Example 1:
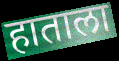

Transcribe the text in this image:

हाताला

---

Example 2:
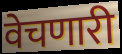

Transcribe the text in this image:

वेचणारी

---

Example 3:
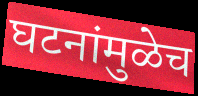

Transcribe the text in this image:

घटनांमुळेच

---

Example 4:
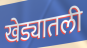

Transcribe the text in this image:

खेड्यातली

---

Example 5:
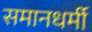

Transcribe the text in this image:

समानधर्मी